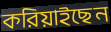
করিয়াইছেন